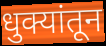
धुक्यांतून